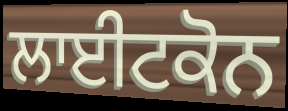
ਲਾਈਟਕੋਨ